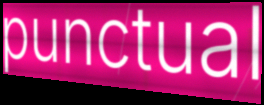
punctual